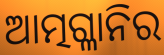
ଆତ୍ମଗ୍ଳାନିର